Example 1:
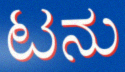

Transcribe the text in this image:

ಟನು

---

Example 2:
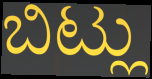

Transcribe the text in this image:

ಬಿಟ್ಲು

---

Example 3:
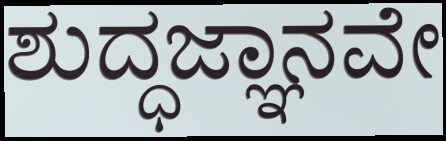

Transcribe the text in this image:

ಶುದ್ಧಜ್ಞಾನವೇ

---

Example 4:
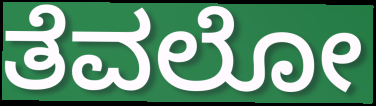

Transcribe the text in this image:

ತೆವಲೋ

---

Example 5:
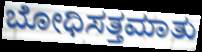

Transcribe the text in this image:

ಬೋಧಿಸತ್ತಮಾತು